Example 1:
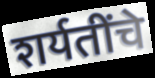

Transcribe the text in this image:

शर्यतींचे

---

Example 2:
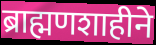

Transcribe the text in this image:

ब्राह्मणशाहीने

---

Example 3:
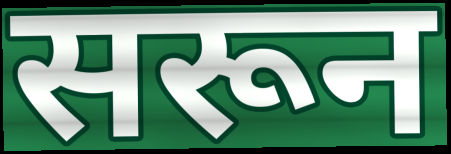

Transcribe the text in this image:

सरून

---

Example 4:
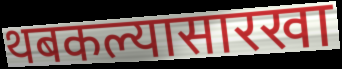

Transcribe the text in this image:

थबकल्यासारखा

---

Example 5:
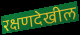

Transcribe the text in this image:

रक्षणदेखील